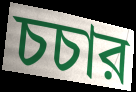
চচার